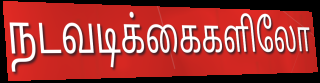
நடவடிக்கைகளிலோ